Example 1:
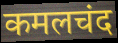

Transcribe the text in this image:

कमलचंद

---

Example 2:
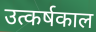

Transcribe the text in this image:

उत्कर्षकाल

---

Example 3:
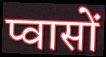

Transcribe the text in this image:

प्वासों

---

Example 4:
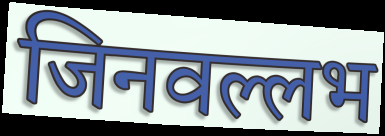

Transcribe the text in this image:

जिनवल्लभ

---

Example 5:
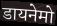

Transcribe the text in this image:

डायनेमो